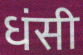
धंसी